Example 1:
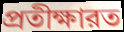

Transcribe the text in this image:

প্রতীক্ষারত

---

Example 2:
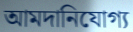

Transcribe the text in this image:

আমদানিযোগ্য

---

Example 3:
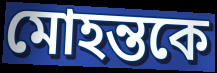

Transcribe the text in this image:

মোহন্তকে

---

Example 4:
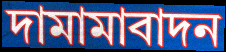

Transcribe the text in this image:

দামামাবাদন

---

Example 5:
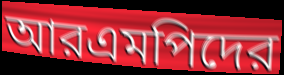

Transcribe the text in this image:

আরএমপিদের